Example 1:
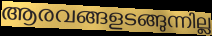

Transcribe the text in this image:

ആരവങ്ങളടങ്ങുന്നില്ല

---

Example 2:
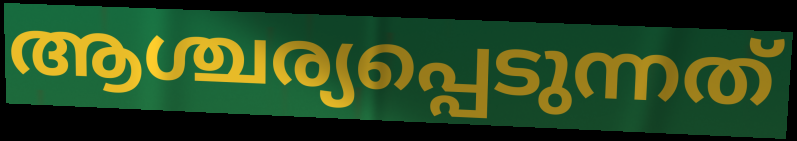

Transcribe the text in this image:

ആശ്ചര്യപ്പെടുന്നത്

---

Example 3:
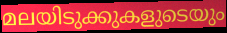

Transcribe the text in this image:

മലയിടുക്കുകളുടെയും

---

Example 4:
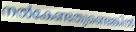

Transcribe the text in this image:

നൽകേണ്ടതുണ്ടെങ്കിൽ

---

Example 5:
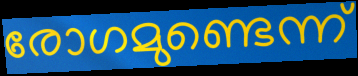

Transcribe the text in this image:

രോഗമുണ്ടെന്ന്